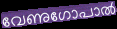
വേണുഗോപാൽ